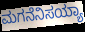
ಮಗನೆನಿಸಯ್ಯಾ